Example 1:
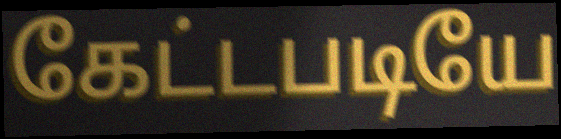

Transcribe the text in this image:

கேட்டபடியே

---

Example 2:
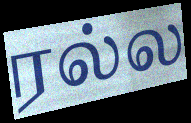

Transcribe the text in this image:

ரல்ல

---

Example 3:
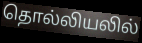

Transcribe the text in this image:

தொல்லியலில்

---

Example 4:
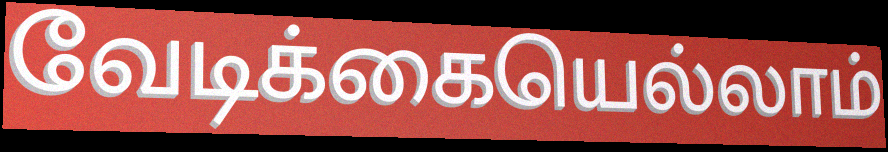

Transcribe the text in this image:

வேடிக்கையெல்லாம்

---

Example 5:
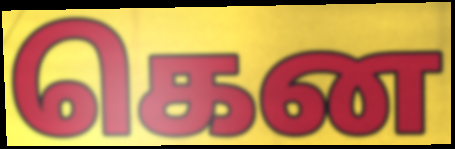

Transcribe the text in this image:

கென